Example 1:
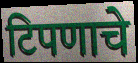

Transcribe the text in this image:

टिपणाचे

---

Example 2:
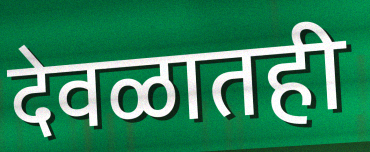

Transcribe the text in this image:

देवळातही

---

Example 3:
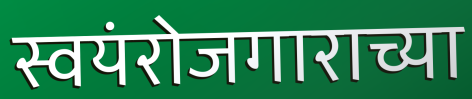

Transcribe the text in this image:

स्वयंरोजगाराच्या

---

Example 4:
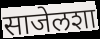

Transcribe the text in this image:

साजेलशा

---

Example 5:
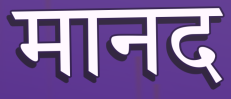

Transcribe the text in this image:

मानद